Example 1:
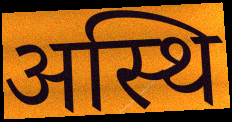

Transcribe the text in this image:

अस्थि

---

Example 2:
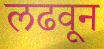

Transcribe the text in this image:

लढवून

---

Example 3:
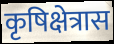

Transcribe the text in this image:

कृषिक्षेत्रास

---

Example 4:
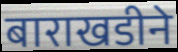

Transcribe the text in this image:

बाराखडीने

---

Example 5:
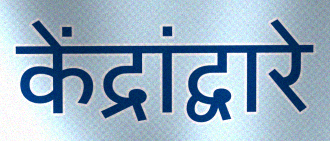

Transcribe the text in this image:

केंद्रांद्वारे